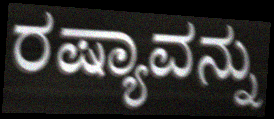
ರಷ್ಯಾವನ್ನು